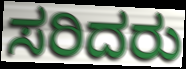
ಸರಿದರು